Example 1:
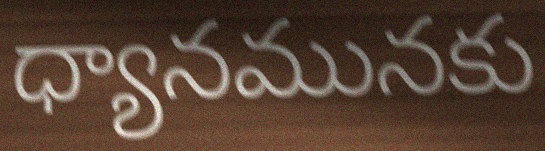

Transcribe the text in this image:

ధ్యానమునకు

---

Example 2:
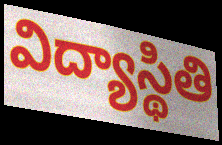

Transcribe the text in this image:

విద్యాస్థితి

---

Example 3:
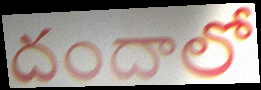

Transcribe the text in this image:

దందాలో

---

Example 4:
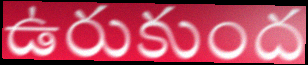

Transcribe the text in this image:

ఉరుకుంద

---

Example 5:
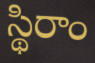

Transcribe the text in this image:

స్థిరాం